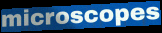
microscopes